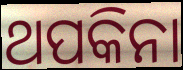
ଥପକିନା